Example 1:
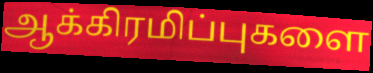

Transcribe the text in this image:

ஆக்கிரமிப்புகளை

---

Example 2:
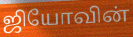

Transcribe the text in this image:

ஜியோவின்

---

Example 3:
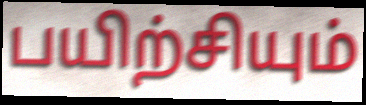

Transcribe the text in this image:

பயிற்சியும்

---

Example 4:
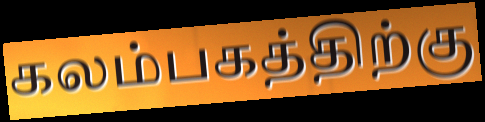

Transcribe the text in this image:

கலம்பகத்திற்கு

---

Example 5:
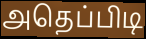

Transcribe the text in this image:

அதெப்பிடி